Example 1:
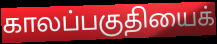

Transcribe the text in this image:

காலப்பகுதியைக்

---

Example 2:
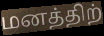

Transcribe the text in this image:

மனத்திற்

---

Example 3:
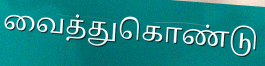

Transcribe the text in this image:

வைத்துகொண்டு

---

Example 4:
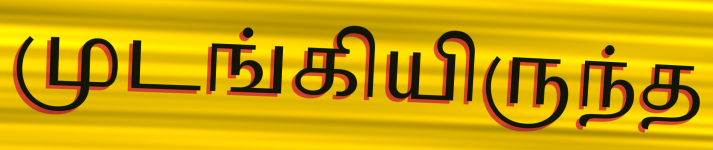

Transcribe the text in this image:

முடங்கியிருந்த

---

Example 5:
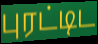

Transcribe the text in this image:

புரட்டிட